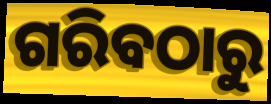
ଗରିବଠାରୁ